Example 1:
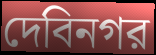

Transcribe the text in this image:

দেবিনগর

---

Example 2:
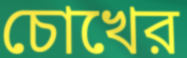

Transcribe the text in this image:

চোখের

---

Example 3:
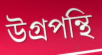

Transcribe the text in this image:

উগ্রপন্থি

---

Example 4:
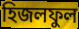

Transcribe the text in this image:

হিজলফুল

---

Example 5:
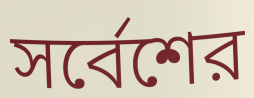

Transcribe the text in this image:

সর্বেশের